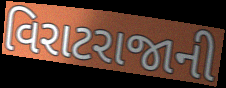
વિરાટરાજાની